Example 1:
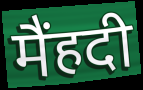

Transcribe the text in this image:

मैंहदी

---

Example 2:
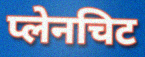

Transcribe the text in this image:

प्लेनचिट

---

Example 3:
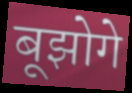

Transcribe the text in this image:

बूझोगे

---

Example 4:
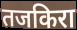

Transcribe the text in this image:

तजकिरा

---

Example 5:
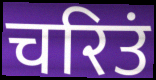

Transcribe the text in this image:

चरिउं